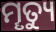
ମୄତ୍ୟୁ